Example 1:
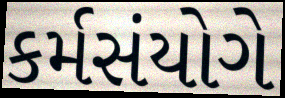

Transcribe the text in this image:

કર્મસંયોગે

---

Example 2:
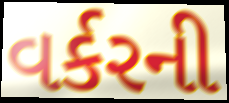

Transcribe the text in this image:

વર્કરની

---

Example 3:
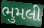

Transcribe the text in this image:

ભુમલી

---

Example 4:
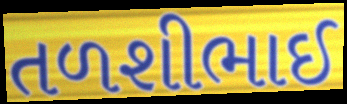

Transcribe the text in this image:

તળશીભાઈ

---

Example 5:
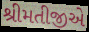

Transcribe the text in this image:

શ્રીમતીજીએ